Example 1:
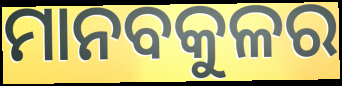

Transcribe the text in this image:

ମାନବକୁଳର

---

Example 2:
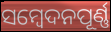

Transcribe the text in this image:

ସମ୍ବେଦନପୂର୍ଣ୍ଣ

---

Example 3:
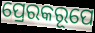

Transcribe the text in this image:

ପ୍ରେରକରୂପେ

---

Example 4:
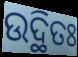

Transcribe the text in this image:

ଉଦ୍ଥିତଃ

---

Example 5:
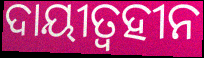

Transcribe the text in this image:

ଦାୟୀତ୍ୱହୀନ